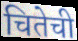
चितेची